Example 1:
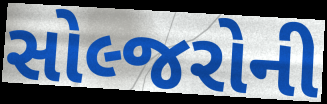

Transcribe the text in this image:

સોલ્જરોની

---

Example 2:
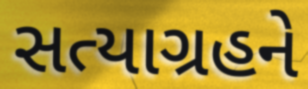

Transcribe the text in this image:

સત્યાગ્રહને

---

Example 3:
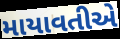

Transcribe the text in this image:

માયાવતીએ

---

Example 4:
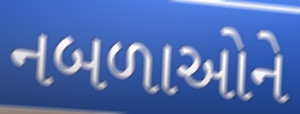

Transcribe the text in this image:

નબળાઓને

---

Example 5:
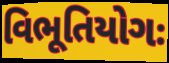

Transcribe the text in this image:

વિભૂતિયોગઃ